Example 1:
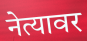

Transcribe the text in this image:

नेत्यावर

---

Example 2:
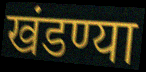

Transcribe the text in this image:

खंडण्या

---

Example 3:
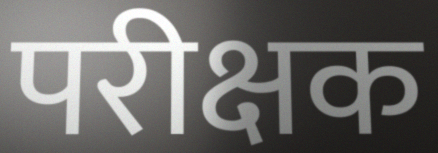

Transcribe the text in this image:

परीक्षक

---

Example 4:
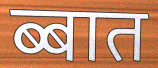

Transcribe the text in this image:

ब्बात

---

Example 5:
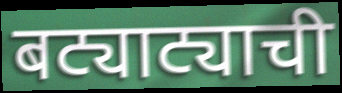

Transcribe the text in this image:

बट्याट्याची